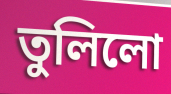
তুলিলো